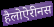
हैलोऐरीनस